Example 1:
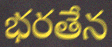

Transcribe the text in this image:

భరతేన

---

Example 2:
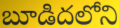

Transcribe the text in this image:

బూడిదలోని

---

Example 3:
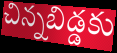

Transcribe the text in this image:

చిన్నబిడ్డకు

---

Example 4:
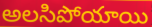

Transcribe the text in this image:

అలసిపోయాయి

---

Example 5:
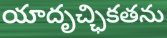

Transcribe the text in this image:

యాదృచ్ఛికతను